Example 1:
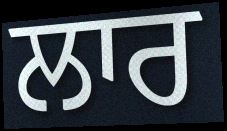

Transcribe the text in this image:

ਲਾਰ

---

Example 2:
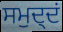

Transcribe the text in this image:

ਸਮੁਦ੍ਦਂ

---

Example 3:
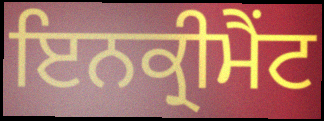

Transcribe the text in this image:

ਇਨਕ੍ਰੀਮੈਂਟ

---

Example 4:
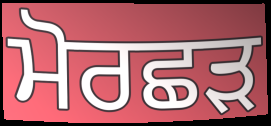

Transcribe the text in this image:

ਮੋਰਛੜ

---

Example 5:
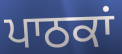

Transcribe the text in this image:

ਪਾਠਕਾਂ